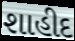
શાહીદ